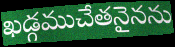
ఖడ్గముచేతనైనను